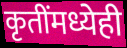
कृतींमध्येही